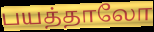
பயத்தாலோ